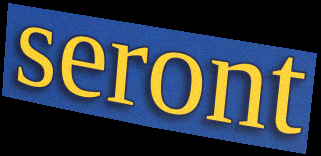
seront